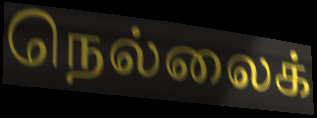
நெல்லைக்